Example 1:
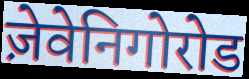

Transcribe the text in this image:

ज़ेवेनिगोरोड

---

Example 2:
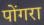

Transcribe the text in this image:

पोंगरा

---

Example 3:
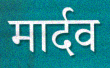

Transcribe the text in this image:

मार्दव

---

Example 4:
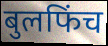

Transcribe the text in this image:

बुलफिंच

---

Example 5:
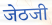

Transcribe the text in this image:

जेठजी